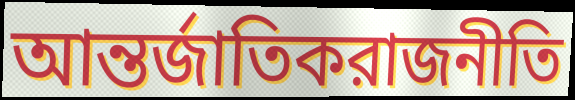
আন্তর্জাতিকরাজনীতি